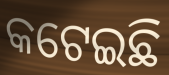
କଟେଇଛି